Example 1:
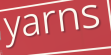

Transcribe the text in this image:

yarns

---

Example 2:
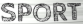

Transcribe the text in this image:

SPORT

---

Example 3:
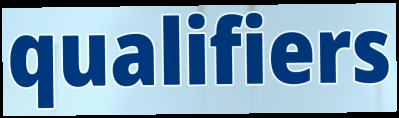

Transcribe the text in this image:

qualifiers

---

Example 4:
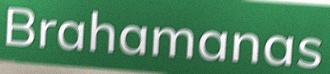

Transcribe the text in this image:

Brahamanas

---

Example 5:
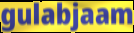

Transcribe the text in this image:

gulabjaam